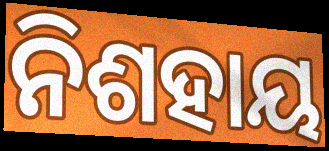
ନିଶହାୟ